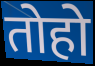
तोहो